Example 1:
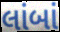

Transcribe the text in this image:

લાંબાં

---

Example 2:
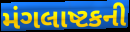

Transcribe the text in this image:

મંગલાષ્ટકની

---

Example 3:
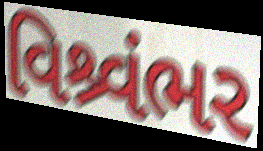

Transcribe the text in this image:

વિશ્ર્વંભર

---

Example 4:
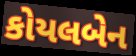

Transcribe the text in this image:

કોયલબેન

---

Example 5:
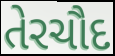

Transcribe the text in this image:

તેરચૌદ